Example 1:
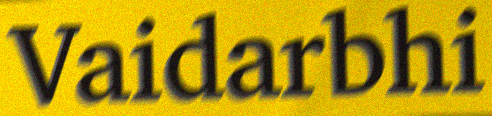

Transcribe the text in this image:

Vaidarbhi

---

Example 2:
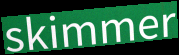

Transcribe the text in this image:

skimmer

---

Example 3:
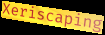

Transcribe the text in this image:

Xeriscaping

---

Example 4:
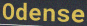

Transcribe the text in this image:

Odense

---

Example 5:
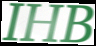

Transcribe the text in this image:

IHB